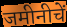
जमीनीचें